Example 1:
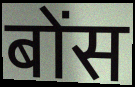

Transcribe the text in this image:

बोंस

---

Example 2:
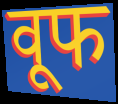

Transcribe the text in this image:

वूफ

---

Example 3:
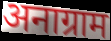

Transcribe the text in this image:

अनाग्राम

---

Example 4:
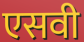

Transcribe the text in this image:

एसवी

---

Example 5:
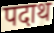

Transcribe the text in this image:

पदाथ